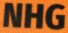
NHG